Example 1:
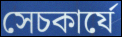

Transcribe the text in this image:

সেচকার্যে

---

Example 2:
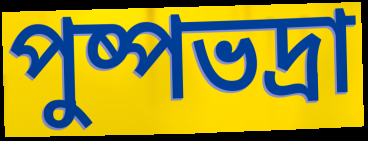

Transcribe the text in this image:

পুষ্পভদ্রা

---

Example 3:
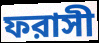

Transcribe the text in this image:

ফরাসী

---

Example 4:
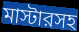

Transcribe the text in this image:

মাস্টারসহ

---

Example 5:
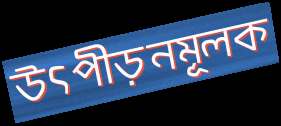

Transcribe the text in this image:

উৎপীড়নমূলক